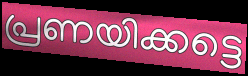
പ്രണയിക്കട്ടെ